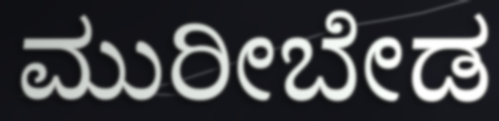
ಮುರೀಬೇಡ